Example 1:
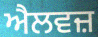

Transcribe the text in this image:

ਐਲਵਜ਼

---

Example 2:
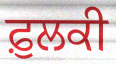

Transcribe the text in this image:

ਫ਼ੁਲਕੀ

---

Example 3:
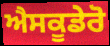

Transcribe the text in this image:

ਐਸਕੂਡੇਰੋ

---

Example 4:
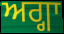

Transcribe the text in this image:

ਅਗ੍ਗਾ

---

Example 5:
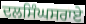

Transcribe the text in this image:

ਦਲਸਿੰਘਸਰਾਏ